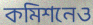
কমিশনেও